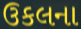
ઉકલના